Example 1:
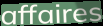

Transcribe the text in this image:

affaires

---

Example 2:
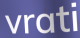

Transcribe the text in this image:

vrati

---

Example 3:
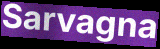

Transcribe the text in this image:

Sarvagna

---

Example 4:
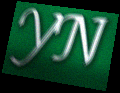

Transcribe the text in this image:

YN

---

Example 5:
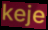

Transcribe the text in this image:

keje